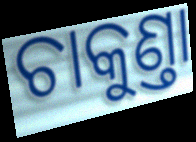
ଚାକୁଣ୍ତା